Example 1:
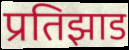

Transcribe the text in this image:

प्रतिझाड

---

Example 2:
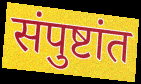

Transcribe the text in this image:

संपुष्टांत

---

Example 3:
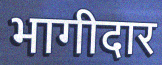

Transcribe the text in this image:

भागीदार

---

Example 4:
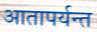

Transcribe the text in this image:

आतापर्यन्त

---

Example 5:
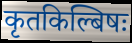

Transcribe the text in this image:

कृतकिल्बिषः